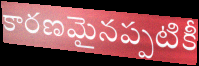
కారణమైనప్పటికీ